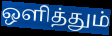
ஒளித்தும்